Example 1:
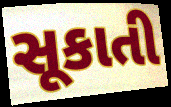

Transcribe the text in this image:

સૂકાતી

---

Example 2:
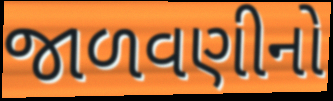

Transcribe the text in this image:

જાળવણીનો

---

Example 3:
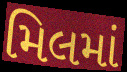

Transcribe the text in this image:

મિલમાં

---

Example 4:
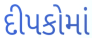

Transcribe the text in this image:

દીપકોમાં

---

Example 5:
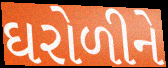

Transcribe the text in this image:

ઘરોળીને